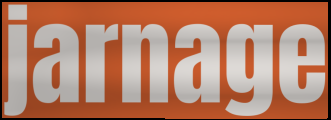
jarnage